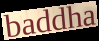
baddha